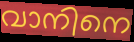
വാനിനെ